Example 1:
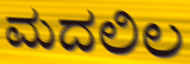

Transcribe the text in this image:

ಮದಲಿಲ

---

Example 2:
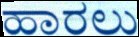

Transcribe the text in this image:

ಹಾರಲು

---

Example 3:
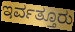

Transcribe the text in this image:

ಇರ್ವತ್ತೂರು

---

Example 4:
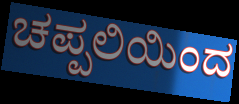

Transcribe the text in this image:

ಚಪ್ಪಲಿಯಿಂದ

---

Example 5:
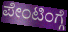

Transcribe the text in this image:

ಪೇಂಟಿಂಗ್ಗೆ